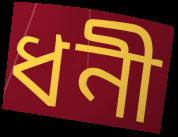
ধনী